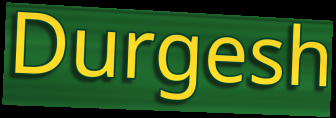
Durgesh